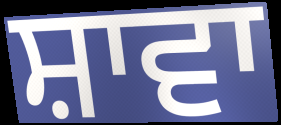
ਸ਼ਾਵਾ